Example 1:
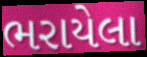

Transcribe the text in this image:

ભરાયેલા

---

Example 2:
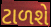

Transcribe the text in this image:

ટાળશે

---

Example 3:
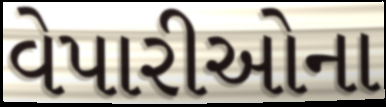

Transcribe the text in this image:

વેપારીઓના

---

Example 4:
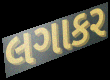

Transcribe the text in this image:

લગાકર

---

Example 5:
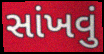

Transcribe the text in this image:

સાંખવું